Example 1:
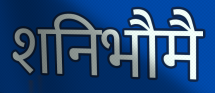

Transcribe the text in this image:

शनिभौमै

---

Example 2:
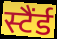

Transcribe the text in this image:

स्टैंर्ड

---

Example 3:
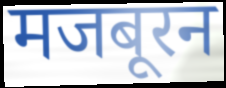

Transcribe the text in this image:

मजबूरन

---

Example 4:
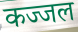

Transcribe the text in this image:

कज्जल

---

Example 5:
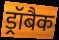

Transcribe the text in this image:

ड्रॉबैक